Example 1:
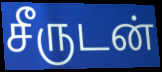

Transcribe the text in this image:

சீருடன்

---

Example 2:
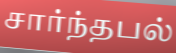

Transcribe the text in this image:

சார்ந்தபல்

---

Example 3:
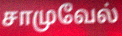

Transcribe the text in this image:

சாமுவேல்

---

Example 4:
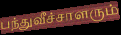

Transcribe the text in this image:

பந்துவீச்சாளரும்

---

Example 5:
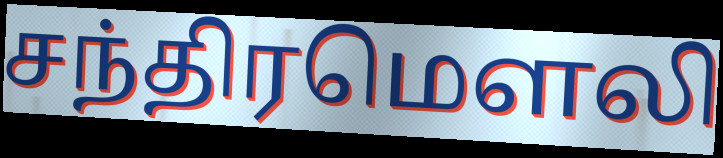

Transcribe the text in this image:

சந்திரமௌலி